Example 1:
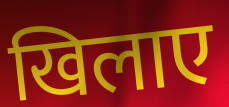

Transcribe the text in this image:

खिलाए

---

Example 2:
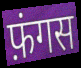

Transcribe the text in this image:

फ़ंगस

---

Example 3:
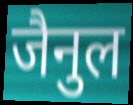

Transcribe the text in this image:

जैनुल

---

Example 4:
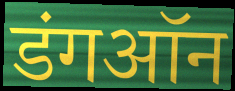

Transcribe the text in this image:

डंगऑन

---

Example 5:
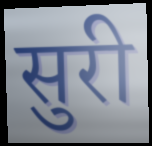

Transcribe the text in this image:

सुरी